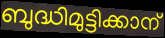
ബുദ്ധിമുട്ടിക്കാന്